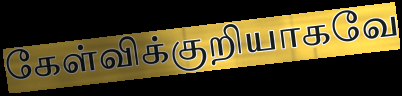
கேள்விக்குறியாகவே